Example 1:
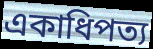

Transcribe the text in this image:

একাধিপত্য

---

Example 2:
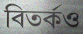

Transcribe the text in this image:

বিতৰ্কও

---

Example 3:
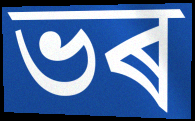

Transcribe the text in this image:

ভৰ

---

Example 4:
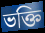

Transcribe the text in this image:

ভক্তি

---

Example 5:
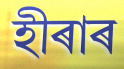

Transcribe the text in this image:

হীৰাৰ